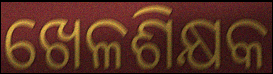
ଖେଳଶିକ୍ଷକ